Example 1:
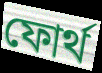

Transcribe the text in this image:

ফোর্থ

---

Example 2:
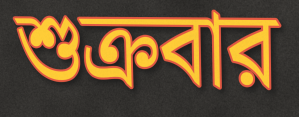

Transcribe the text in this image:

শুক্রবার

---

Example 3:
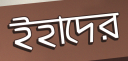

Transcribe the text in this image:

ইহাদের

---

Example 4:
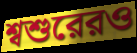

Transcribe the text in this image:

শ্বশুরেরও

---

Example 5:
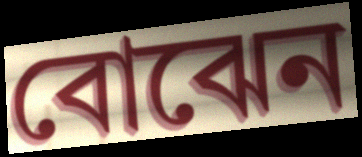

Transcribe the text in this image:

বোঝেন